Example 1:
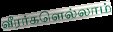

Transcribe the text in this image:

வீரர்களெல்லாம்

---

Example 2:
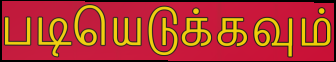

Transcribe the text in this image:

படியெடுக்கவும்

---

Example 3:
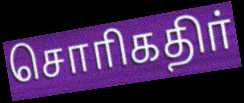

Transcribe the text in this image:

சொரிகதிர்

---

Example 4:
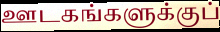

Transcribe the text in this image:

ஊடகங்களுக்குப்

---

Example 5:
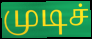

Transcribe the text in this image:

முடிச்